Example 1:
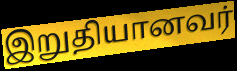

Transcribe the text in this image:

இறுதியானவர்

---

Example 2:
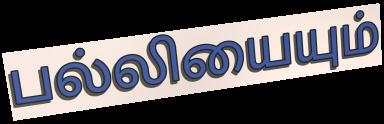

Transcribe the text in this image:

பல்லியையும்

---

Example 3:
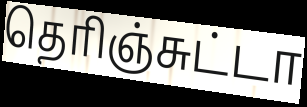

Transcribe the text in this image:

தெரிஞ்சுட்டா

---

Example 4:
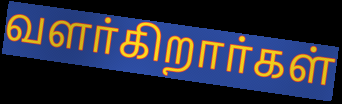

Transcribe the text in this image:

வளர்கிறார்கள்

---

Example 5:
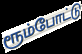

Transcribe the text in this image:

ரூம்போட்டு